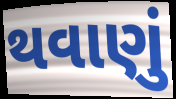
થવાણું